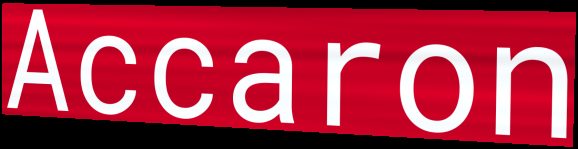
Accaron